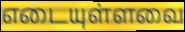
எடையுள்ளவை